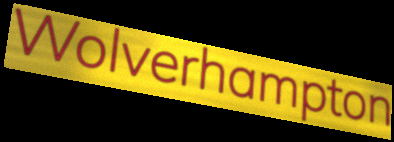
Wolverhampton